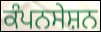
ਕੰਪਨਸੇਸ਼ਨ